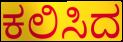
ಕಲಿಸಿದ